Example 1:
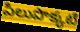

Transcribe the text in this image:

పిలుపొక్కటి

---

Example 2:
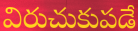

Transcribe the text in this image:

విరుచుకుపడే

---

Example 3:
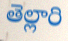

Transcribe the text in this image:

తెల్లారి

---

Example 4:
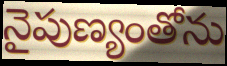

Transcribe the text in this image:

నైపుణ్యంతోను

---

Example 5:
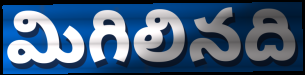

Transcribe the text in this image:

మిగిలినది